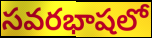
సవరభాషలో